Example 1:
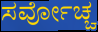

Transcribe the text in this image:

ಸರ್ವೋಚ್ಚ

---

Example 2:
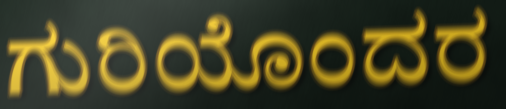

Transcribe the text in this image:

ಗುರಿಯೊಂದರ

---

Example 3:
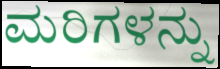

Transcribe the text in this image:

ಮರಿಗಳನ್ನು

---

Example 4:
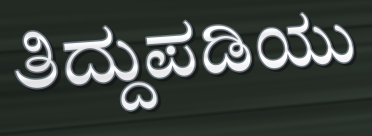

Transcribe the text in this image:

ತಿದ್ದುಪಡಿಯು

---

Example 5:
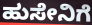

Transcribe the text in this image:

ಹುಸೇನಿಗೆ